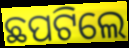
ଛପଟିଲେ